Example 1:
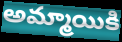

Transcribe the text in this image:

అమ్మాయికి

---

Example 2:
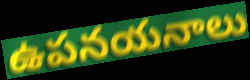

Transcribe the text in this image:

ఉపనయనాలు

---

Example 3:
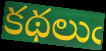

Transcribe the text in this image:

కథలుఁ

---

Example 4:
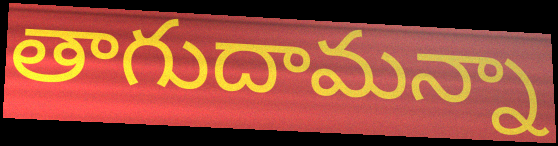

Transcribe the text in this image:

తాగుదామన్నా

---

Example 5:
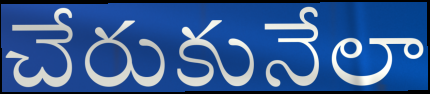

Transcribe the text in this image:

చేరుకునేలా